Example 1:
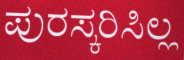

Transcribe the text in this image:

ಪುರಸ್ಕರಿಸಿಲ್ಲ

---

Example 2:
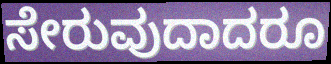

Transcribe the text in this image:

ಸೇರುವುದಾದರೂ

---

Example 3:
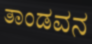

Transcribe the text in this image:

ತಾಂಡವನ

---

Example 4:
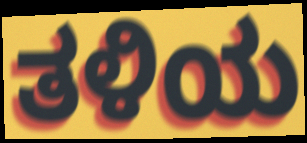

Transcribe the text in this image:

ತಳಿಯ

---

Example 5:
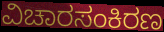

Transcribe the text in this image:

ವಿಚಾರಸಂಕಿರಣ